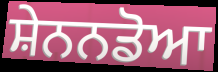
ਸ਼ੇਨਨਡੋਆ